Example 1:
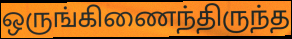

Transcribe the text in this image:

ஒருங்கிணைந்திருந்த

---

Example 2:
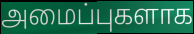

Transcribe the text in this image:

அமைப்புகளாக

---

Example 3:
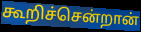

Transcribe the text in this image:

கூறிச்சென்றான்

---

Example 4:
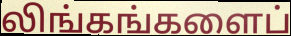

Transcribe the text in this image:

லிங்கங்களைப்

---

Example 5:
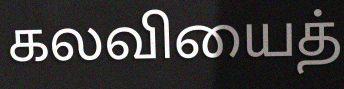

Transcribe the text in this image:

கலவியைத்